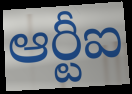
ఆర్టీఐ